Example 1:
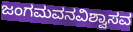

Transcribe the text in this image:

ಜಂಗಮವನವಿಶ್ವಾಸವ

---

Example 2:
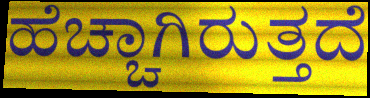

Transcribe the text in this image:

ಹೆಚ್ಚಾಗಿರುತ್ತದೆ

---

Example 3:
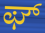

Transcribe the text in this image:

ಘ್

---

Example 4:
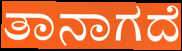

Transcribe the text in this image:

ತಾನಾಗದೆ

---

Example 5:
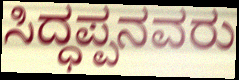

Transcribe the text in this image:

ಸಿದ್ಧಪ್ಪನವರು